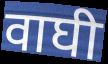
वाघी